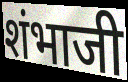
शंभाजी